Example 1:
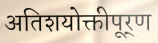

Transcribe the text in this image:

अतिशयोक्तीपूर्ण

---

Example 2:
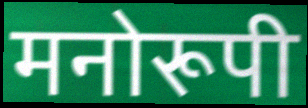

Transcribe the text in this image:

मनोरूपी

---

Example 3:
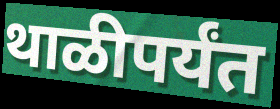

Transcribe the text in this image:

थाळीपर्यंत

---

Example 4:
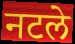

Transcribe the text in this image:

नटले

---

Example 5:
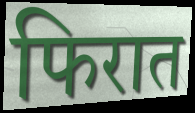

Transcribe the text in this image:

फिरात